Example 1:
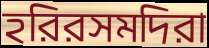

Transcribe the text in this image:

হরিরসমদিরা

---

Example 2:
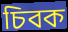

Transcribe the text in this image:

চিবক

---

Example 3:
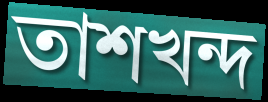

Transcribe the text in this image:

তাশখন্দ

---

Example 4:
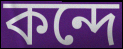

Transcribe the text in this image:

কন্দে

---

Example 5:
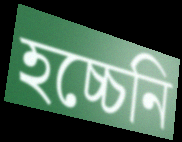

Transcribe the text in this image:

হচ্চেনি